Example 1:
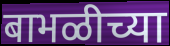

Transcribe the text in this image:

बाभळीच्या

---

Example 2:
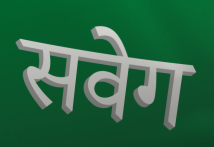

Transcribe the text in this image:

सवेग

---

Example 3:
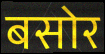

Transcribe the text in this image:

बसोर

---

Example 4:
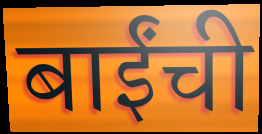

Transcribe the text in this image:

बाईंची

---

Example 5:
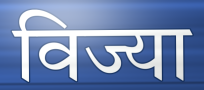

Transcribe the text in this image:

विज्या